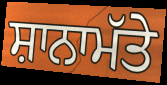
ਸ਼ਾਨਾਮੱਤੇ